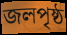
জলপৃষ্ঠ